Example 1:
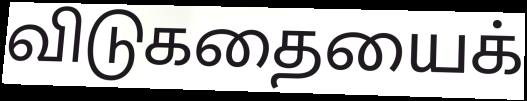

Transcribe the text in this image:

விடுகதையைக்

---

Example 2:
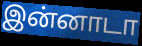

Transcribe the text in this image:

இன்னாடா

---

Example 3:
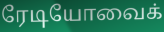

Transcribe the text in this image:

ரேடியோவைக்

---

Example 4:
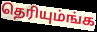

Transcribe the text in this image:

தெரியும்ங்க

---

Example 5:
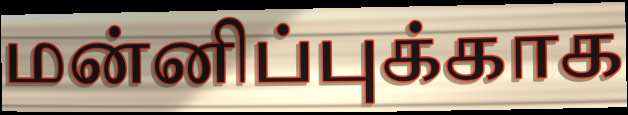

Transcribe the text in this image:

மன்னிப்புக்காக